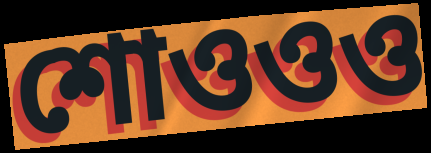
শোওওও